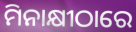
ମିନାକ୍ଷୀଠାରେ